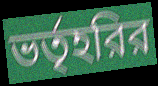
ভর্তৃহরির